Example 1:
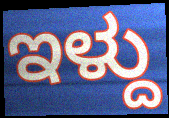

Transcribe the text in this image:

ಇಳ್ದು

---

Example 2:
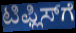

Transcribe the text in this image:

ಟಿಫ್ಲಿಸ್‍ಗೆ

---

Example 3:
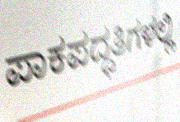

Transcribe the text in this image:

ಪಾಕಪದ್ಧತಿಗಳಲ್ಲಿ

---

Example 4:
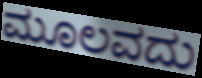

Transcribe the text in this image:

ಮೂಲವದು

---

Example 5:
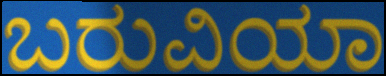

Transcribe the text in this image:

ಬರುವಿಯಾ